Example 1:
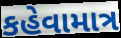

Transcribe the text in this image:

કહેવામાત્ર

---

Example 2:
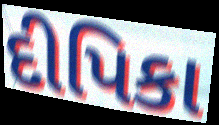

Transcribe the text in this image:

દીપિકા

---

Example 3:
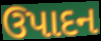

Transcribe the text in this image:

ઉપાદન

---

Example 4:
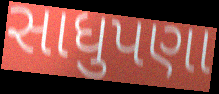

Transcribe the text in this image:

સાધુપણા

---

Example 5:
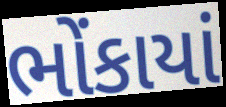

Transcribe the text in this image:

ભોંકાયાં